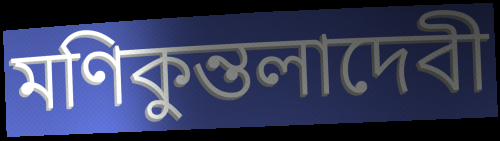
মণিকুন্তলাদেবী